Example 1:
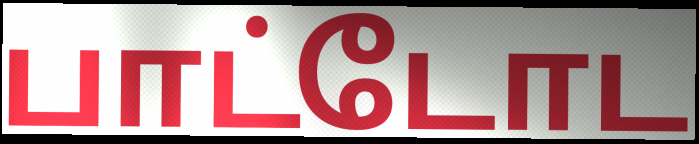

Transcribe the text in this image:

பாட்டோட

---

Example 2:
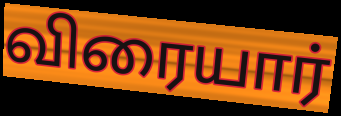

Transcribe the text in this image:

விரையார்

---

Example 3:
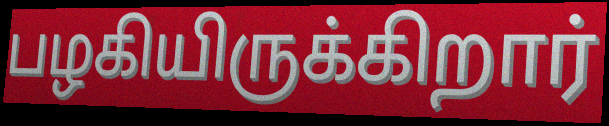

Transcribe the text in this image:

பழகியிருக்கிறார்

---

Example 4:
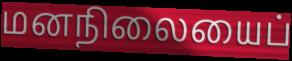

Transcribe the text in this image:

மனநிலையைப்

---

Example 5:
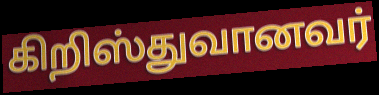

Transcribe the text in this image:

கிறிஸ்துவானவர்